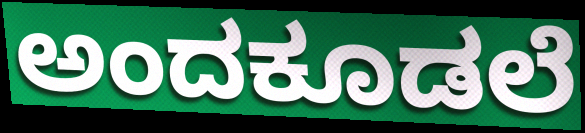
ಅಂದಕೂಡಲೆ